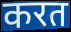
करत